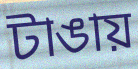
টাঙায়